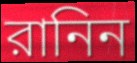
রানিন